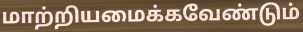
மாற்றியமைக்கவேண்டும்